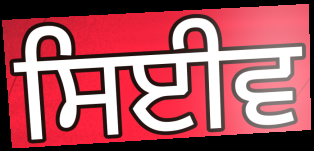
ਸਿਈਵ